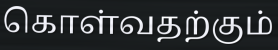
கொள்வதற்கும்